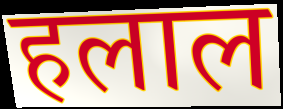
हलाल